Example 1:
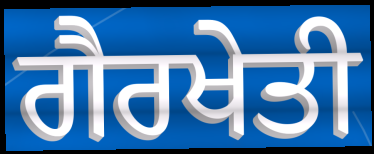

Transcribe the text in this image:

ਗੈਰਖੇਤੀ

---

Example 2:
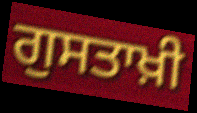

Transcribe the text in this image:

ਗੁਸਤਾਖ਼ੀ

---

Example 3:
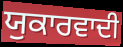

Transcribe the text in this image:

ਯੁਕਾਰਵਾਦੀ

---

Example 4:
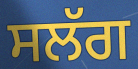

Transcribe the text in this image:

ਸਲੱਗ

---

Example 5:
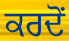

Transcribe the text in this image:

ਕਰਦੋਂ